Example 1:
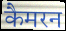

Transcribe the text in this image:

कैमरन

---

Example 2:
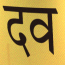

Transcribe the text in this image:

दव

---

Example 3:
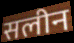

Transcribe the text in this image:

सलीन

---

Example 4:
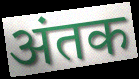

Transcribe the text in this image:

अंतक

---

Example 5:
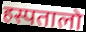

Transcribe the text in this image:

हस्पतालो